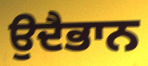
ਉਦੈਭਾਨ